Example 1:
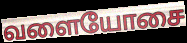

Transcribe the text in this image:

வளையோசை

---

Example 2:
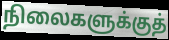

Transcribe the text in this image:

நிலைகளுக்குத்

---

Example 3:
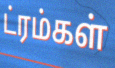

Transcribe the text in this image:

ட்ரம்கள்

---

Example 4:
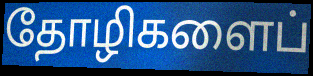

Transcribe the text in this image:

தோழிகளைப்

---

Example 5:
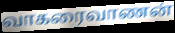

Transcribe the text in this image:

வாகரைவாணன்